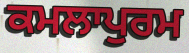
ਕਮਲਾਪੁਰਮ